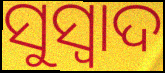
ସୁସ୍ୱାଦ